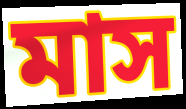
মাস